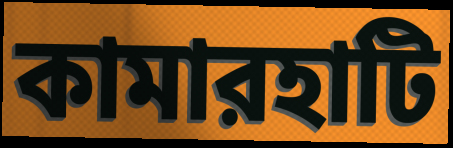
কামারহাটি